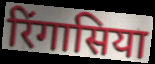
रिंगासिया